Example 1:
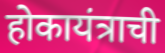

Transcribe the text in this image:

होकायंत्राची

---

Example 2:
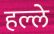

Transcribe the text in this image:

हल्ले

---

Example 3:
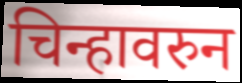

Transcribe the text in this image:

चिन्हावरुन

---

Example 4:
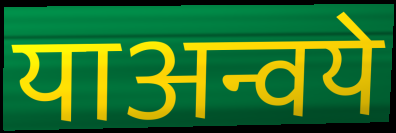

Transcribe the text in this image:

याअन्वये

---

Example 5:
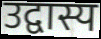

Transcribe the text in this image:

उद्वास्य